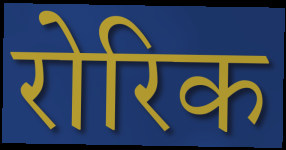
रोरिक